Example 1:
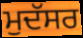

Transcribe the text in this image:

ਮੁਦੱਸਰ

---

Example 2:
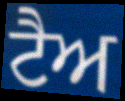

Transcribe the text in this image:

ਟੈਅ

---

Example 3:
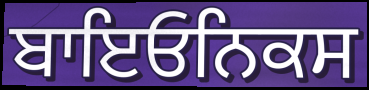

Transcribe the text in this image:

ਬਾਇਓਨਿਕਸ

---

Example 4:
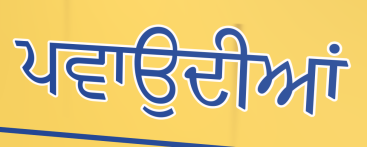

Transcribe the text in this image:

ਪਵਾਉਦੀਆਂ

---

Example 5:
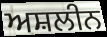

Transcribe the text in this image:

ਅਸ਼ਲੀਨ